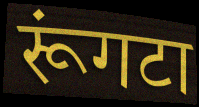
रूंगटा